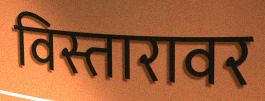
विस्तारावर